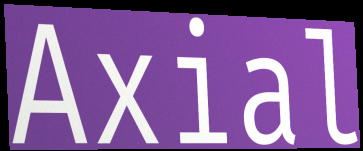
Axial